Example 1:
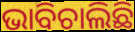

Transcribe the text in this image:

ଭାବିଚାଲିଛି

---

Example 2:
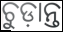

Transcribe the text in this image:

ଚୁଡ଼ାନ୍ତ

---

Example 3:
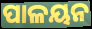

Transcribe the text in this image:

ପାଳୟନ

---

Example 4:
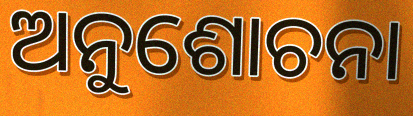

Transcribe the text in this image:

ଅନୁଶୋଚନା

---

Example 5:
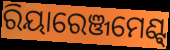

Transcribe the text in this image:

ରିୟାରେଞ୍ଜମେଣ୍ଟ୍